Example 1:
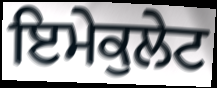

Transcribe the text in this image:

ਇਮੇਕੁਲੇਟ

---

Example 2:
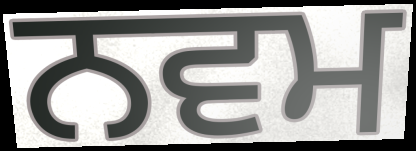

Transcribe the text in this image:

ਨਵਮ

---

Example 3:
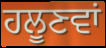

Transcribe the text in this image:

ਹਲੂਣਵਾਂ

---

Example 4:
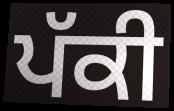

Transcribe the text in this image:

ਪੱਕੀ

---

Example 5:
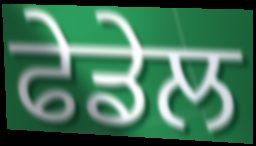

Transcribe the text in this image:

ਫੇਡੇਲ